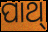
ପାଥ୍